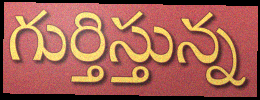
గుర్తిస్తున్న